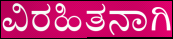
ವಿರಹಿತನಾಗಿ